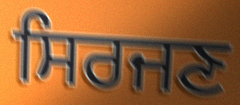
ਸਿਰਜਣ